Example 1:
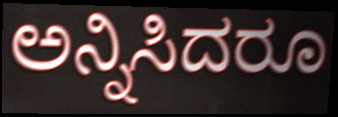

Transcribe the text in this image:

ಅನ್ನಿಸಿದರೂ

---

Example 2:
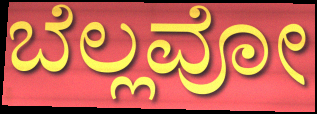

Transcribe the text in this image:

ಬೆಲ್ಲವೋ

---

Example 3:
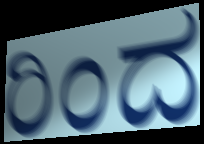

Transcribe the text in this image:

ರಿಂದ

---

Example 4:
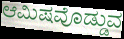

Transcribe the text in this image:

ಆಮಿಷವೊಡ್ಡುವ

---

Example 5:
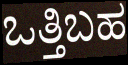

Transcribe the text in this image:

ಒತ್ತಿಬಹ